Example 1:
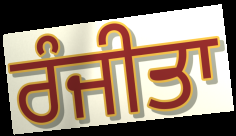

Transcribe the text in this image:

ਰੰਜੀਤਾ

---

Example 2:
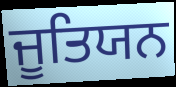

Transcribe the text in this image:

ਜੂਤਿਯਨ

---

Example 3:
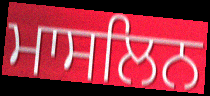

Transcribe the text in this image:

ਮਾਸਲਿਨ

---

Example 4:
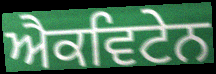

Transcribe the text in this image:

ਐਕਵਿਟੇਨ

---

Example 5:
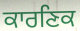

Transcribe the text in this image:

ਕਾਰਣਿਕ